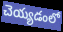
చెయ్యడంలో